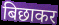
बिछाकर